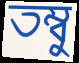
তম্বু